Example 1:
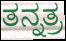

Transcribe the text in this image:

ತನ್ನತ್ರ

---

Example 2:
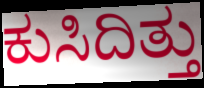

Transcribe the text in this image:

ಕುಸಿದಿತ್ತು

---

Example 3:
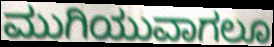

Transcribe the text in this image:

ಮುಗಿಯುವಾಗಲೂ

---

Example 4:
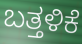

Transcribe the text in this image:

ಬತ್ತಳಿಕೆ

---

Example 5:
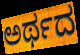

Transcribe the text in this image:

ಅರ್ಥದ